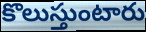
కొలుస్తుంటారు